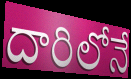
దారిలోనే